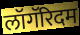
लॉगॅरिदम